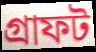
গ্রাফট